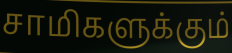
சாமிகளுக்கும்